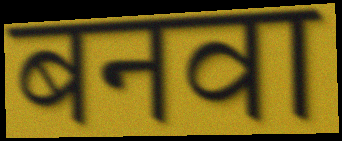
बनवा